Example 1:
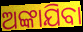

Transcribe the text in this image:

ଅଙ୍କାଯିବା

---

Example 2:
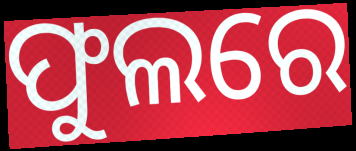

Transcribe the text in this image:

ଫୁଲରେ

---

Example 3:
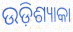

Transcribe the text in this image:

ଉଡ଼ିଶ୍ୟାକା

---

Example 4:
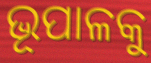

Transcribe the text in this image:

ଭୂପାଳକୁ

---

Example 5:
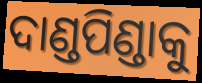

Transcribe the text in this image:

ଦାଣ୍ଡପିଣ୍ଡାକୁ